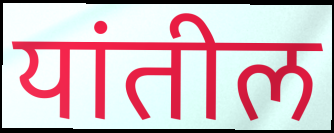
यांतील